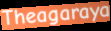
Theagaraya